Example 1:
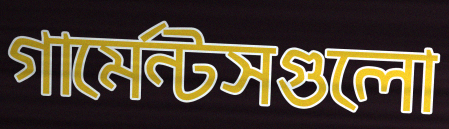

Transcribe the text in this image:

গার্মেন্টসগুলো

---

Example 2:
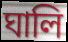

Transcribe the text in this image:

ঘালি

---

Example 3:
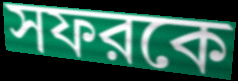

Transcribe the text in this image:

সফরকে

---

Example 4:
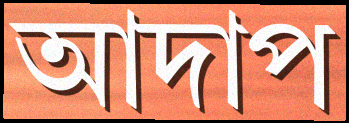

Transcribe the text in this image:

আদাপ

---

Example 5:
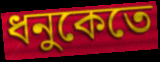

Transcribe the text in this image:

ধনুকেতে